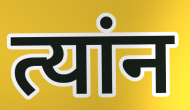
त्यांन